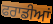
ਫਰਾਡੀਆਂ